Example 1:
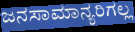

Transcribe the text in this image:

ಜನಸಾಮಾನ್ಯರಿಗಲ್ಲ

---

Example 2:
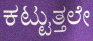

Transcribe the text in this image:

ಕಟ್ಟುತ್ತಲೇ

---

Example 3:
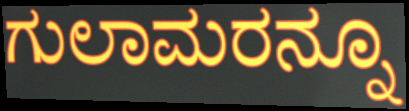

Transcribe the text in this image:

ಗುಲಾಮರನ್ನೂ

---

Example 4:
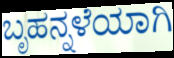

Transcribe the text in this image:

ಬೃಹನ್ನಳೆಯಾಗಿ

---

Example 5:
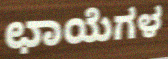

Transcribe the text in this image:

ಛಾಯೆಗಳ